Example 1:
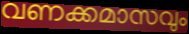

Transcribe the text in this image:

വണക്കമാസവും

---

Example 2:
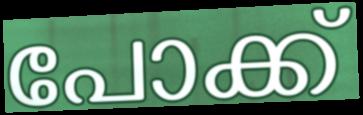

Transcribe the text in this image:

പോക്ക്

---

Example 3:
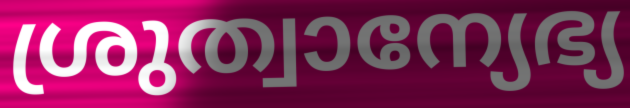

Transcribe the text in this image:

ശ്രുത്വാന്യേഭ്യ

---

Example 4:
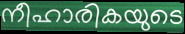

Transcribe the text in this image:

നീഹാരികയുടെ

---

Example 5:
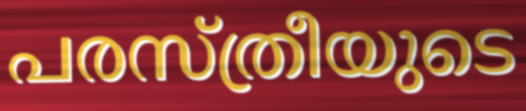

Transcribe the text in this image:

പരസ്ത്രീയുടെ